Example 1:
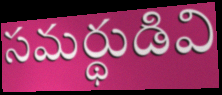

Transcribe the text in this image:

సమర్థుడివి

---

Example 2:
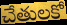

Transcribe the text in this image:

చేతులకో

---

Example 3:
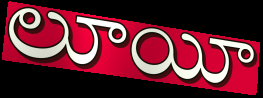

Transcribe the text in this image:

లూయీ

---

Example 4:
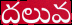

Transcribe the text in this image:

దలువ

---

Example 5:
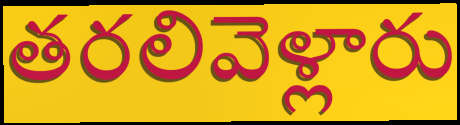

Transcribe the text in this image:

తరలివెళ్లారు